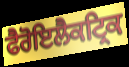
ਫੈਰੋਇਲੈਕਟ੍ਰਿਕ